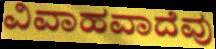
ವಿವಾಹವಾದೆವು